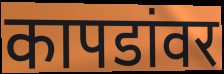
कापडांवर